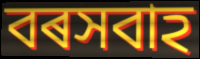
বৰসবাহ